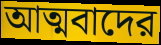
আত্মবাদের